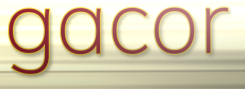
gacor